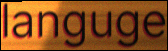
languge